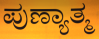
ಪುಣ್ಯಾತ್ಮ